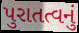
પુરાતત્વનું